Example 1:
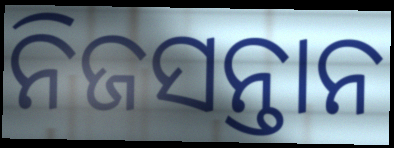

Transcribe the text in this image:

ନିଜସନ୍ତାନ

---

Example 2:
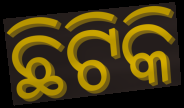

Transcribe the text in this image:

ଛିଟିକି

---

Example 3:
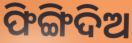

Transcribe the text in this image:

ଫିଙ୍ଗିଦିଅ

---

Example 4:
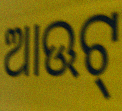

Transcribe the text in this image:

ଆଊଟ୍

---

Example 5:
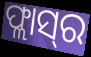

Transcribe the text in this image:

ଫ୍ଲାସ୍‌ର